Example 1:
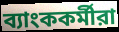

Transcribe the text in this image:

ব্যাংককর্মীরা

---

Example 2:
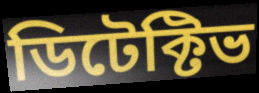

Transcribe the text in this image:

ডিটেক্টিভ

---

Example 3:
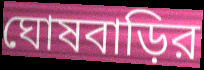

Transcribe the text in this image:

ঘোষবাড়ির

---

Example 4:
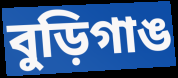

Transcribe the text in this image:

বুড়িগাঙ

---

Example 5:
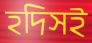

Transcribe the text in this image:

হদিসই